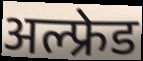
अल्फ्रेड